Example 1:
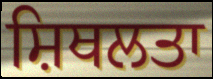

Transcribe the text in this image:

ਸ਼ਿਥਲਤਾ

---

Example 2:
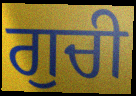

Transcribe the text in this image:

ਗੁਚੀ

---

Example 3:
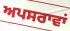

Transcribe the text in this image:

ਅਪਸਰਾਵਾਂ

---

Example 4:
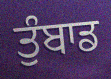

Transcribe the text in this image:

ਤੁੰਬਾਡ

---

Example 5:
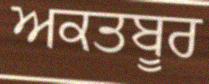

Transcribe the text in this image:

ਅਕਤਬੂਰ